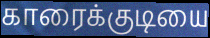
காரைக்குடியை